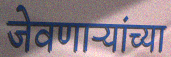
जेवणाऱ्यांच्या